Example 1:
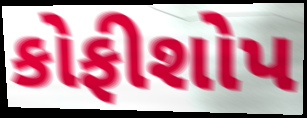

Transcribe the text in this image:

કોફીશોપ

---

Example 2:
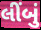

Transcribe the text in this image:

લીંબું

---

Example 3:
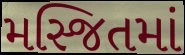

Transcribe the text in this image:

મસ્જિતમાં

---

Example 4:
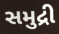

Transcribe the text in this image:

સમુદ્રી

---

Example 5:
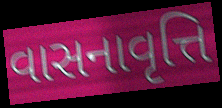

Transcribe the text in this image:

વાસનાવૃત્તિ